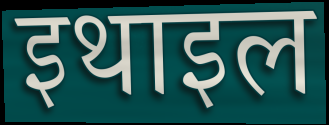
इथाइल